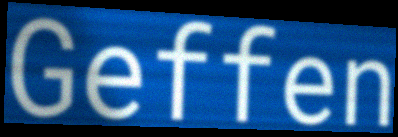
Geffen